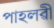
পাহলৱী